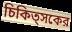
চিকিত্সকের